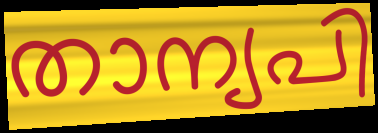
താന്യപി